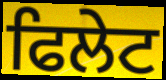
ਫਿਲੇਟ